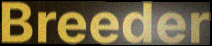
Breeder